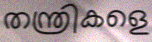
തന്ത്രികളെ